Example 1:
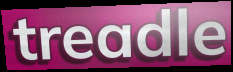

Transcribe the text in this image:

treadle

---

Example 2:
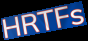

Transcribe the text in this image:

HRTFs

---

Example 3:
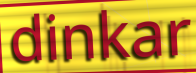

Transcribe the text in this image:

dinkar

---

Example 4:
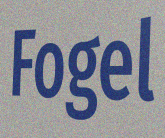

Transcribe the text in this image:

Fogel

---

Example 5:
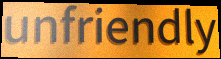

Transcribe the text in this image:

unfriendly